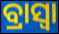
ବ୍ରାସ୍ବା